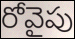
రోవైపు